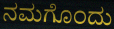
ನಮಗೊಂದು